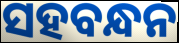
ସହବନ୍ଧନ